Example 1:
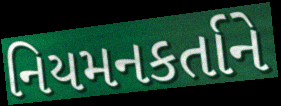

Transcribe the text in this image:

નિયમનકર્તાને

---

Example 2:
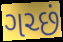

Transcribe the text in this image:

ગચ્છં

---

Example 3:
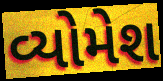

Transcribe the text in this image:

વ્યોમેશ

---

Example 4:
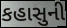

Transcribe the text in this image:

કહાસુની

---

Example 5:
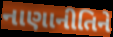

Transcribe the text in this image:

નાણાનીતિને